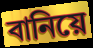
বানিয়ে